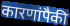
कारणांपैकी